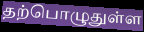
தற்பொழுதுள்ள